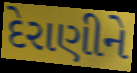
દેરાણીને